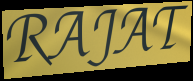
RAJAT